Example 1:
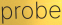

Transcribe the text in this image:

probe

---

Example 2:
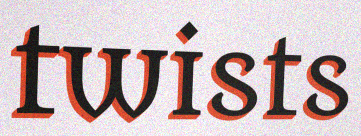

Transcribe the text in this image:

twists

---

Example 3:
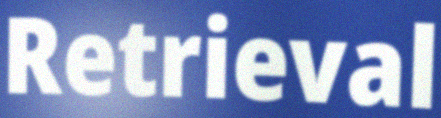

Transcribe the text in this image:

Retrieval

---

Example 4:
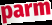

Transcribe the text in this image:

parm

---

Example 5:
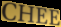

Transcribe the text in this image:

CHEE